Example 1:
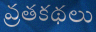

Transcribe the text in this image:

వ్రతకథలు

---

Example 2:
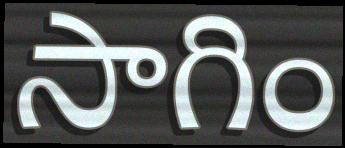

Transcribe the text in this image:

సాగిం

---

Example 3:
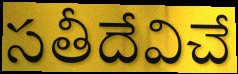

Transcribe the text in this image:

సతీదేవిచే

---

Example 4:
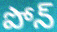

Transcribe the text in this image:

పోన్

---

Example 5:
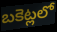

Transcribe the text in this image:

బకెట్లలో